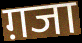
ग़जा